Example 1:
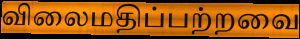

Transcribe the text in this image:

விலைமதிப்பற்றவை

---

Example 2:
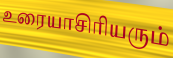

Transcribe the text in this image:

உரையாசிரியரும்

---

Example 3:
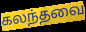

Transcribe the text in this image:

கலந்தவை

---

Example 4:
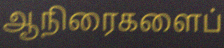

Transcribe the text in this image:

ஆநிரைகளைப்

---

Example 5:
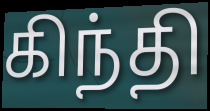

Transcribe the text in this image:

கிந்தி